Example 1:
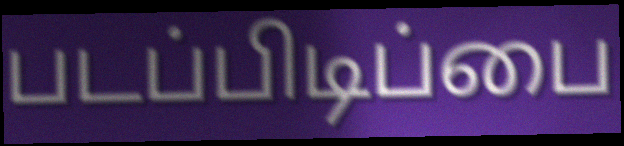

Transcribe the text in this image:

படப்பிடிப்பை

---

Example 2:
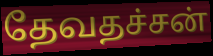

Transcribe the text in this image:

தேவதச்சன்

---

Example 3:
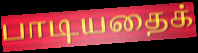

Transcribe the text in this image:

பாடியதைக்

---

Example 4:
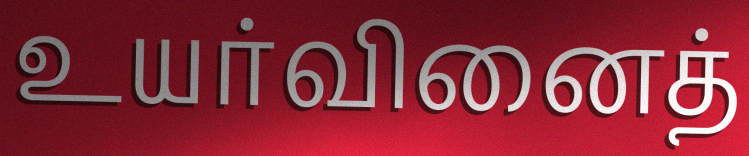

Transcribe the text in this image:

உயர்வினைத்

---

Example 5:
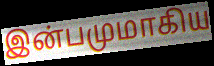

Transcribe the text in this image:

இன்பமுமாகிய